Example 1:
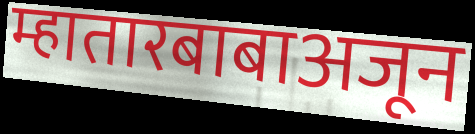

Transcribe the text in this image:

म्हातारबाबाअजून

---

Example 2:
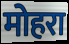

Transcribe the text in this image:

मोहरा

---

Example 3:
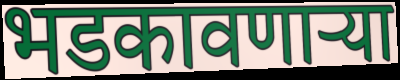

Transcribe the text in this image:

भडकावणाऱ्या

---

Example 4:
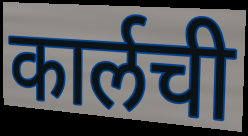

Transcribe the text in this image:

कार्लची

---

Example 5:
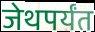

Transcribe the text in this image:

जेथपर्यंत